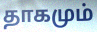
தாகமும்